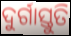
ଦୁର୍ଗାସ୍ତୁତି